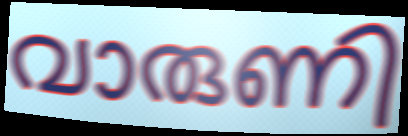
വാരുണി